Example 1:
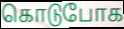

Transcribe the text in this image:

கொடுபோக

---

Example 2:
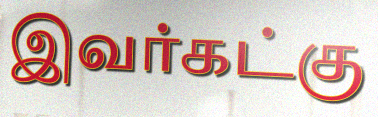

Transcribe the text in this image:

இவர்கட்கு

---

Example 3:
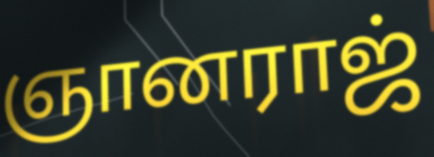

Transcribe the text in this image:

ஞானராஜ்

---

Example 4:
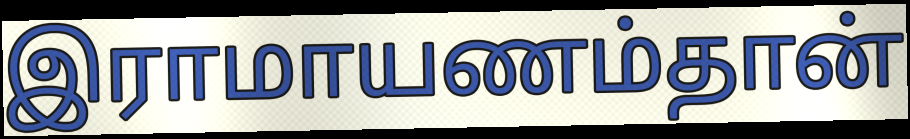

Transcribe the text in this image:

இராமாயணம்தான்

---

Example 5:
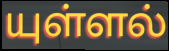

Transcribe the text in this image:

யுள்ளல்